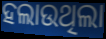
ହଲାଉଥିଲା